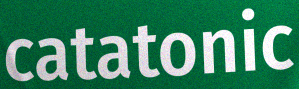
catatonic